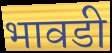
भावडी